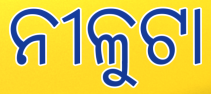
ନୀଳୁଟା